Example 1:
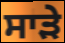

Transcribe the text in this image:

ਸਾੜੇ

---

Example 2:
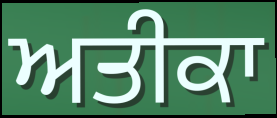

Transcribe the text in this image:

ਅਤੀਕਾ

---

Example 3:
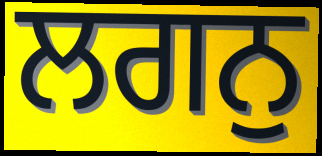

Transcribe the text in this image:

ਲਗਨੁ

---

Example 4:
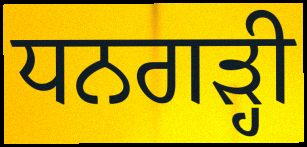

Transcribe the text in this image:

ਧਨਗੜ੍ਹੀ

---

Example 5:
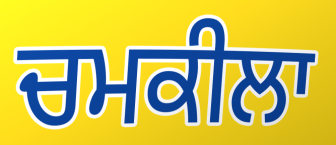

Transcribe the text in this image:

ਚਮਕੀਲਾ